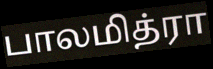
பாலமித்ரா